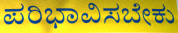
ಪರಿಭಾವಿಸಬೇಕು